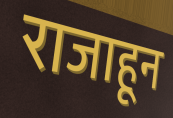
राजाहून